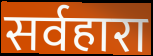
सर्वहारा